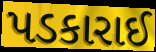
પડકારાઈ